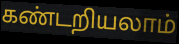
கண்டறியலாம்